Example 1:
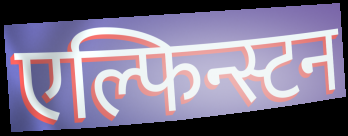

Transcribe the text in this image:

एल्फिन्स्टन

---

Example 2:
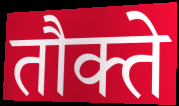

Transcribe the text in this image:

तौक्ते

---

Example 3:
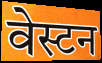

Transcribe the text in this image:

वेस्टन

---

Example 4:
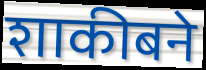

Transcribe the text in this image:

शाकीबने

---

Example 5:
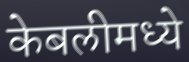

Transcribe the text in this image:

केबलीमध्ये